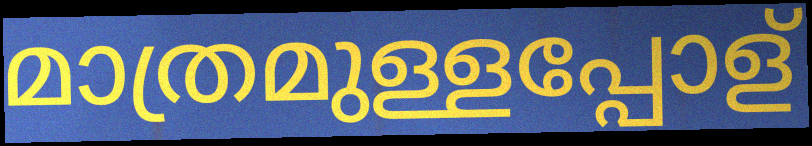
മാത്രമുള്ളപ്പോള്